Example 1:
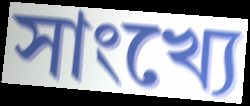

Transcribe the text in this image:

সাংখ্যে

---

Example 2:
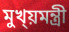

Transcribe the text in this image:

মুখ্য়মন্ত্রী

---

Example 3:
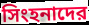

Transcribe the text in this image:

সিংহনাদের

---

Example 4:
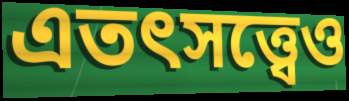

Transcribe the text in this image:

এতৎসত্ত্বেও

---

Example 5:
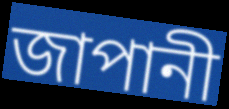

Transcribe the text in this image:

জাপানী